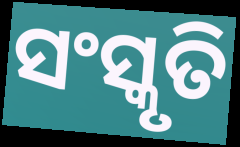
ସଂସ୍କୃତି